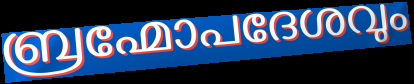
ബ്രഹ്മോപദേശവും